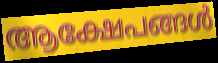
ആക്ഷേപങ്ങൾ